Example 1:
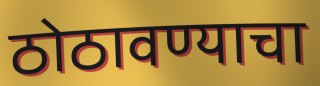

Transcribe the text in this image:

ठोठावण्याचा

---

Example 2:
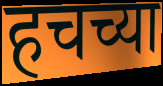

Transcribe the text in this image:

हचच्या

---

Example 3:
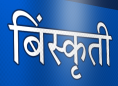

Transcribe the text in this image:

बिंस्कृती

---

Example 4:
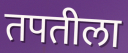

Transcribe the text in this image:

तपतीला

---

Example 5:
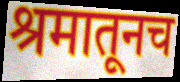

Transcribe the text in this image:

श्रमातूनच